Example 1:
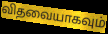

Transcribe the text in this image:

விதவையாகவும்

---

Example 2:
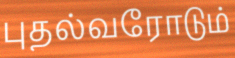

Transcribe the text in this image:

புதல்வரோடும்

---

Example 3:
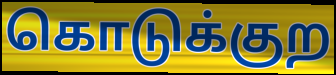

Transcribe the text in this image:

கொடுக்குற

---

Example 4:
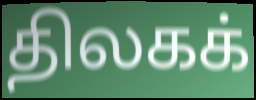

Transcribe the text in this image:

திலகக்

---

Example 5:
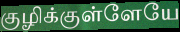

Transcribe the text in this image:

குழிக்குள்ளேயே